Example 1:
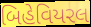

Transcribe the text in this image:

બિહેવિયરલ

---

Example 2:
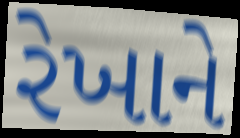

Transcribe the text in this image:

રેખાને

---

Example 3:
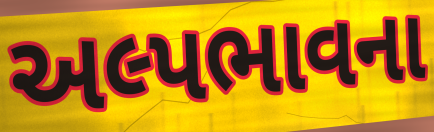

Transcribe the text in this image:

અલ્પભાવના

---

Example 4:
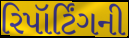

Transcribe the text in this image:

રિપૉર્ટિંગની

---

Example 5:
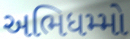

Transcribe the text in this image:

અભિધમ્મો